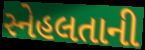
સ્નેહલતાની